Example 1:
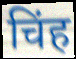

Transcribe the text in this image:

चिंह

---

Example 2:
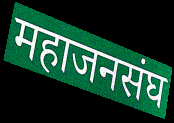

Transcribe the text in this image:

महाजनसंघ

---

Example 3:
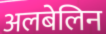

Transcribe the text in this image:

अलबेलिन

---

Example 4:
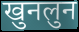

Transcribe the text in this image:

खुनलुन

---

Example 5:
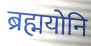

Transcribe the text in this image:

ब्रह्मयोनि